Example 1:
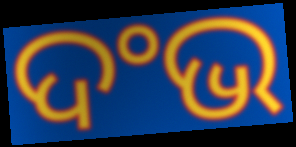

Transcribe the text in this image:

ଦଂଭ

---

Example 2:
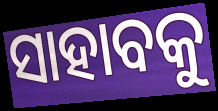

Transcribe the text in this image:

ସାହାବକୁ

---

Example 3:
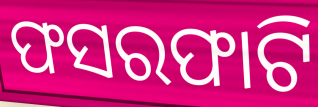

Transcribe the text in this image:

ଫସରଫାଟି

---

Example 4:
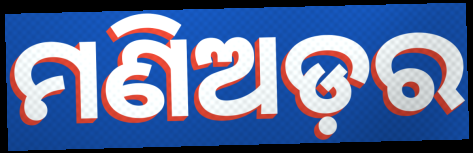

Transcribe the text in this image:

ମଣିଅଡ଼ର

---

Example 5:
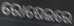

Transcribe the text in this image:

ରୋଷେଇରେ